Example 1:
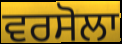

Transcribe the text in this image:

ਵਰਸੋਲਾ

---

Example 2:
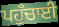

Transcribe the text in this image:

ਪਹੁਁਚਾਈ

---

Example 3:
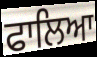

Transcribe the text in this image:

ਫਾਲਿਆ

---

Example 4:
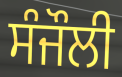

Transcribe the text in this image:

ਸੰਜੌਲੀ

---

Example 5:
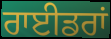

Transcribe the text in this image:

ਰਾਈਡਰਾਂ